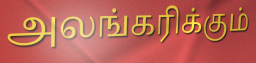
அலங்கரிக்கும்